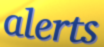
alerts